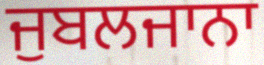
ਜੁਬਲਜਾਨਾ